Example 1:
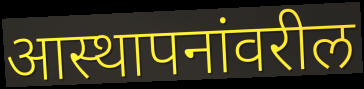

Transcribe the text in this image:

आस्थापनांवरील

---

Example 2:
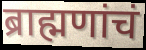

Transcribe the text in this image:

ब्राह्मणांचं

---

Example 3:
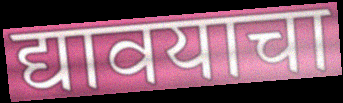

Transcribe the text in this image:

द्यावयाचा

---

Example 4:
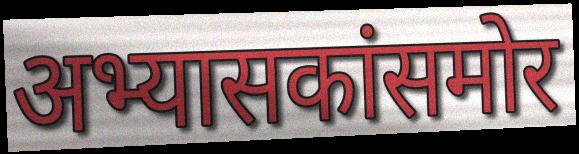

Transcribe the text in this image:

अभ्यासकांसमोर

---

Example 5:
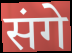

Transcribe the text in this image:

संगे